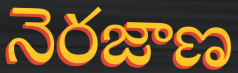
నెరజాణ